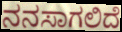
ನನಸಾಗಲಿದೆ